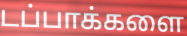
டப்பாக்களை